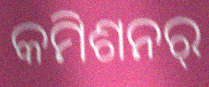
କମିଶନର୍